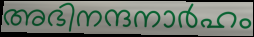
അഭിനന്ദനാർഹം